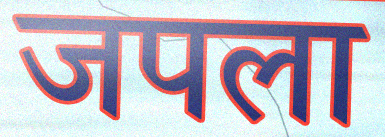
जपला